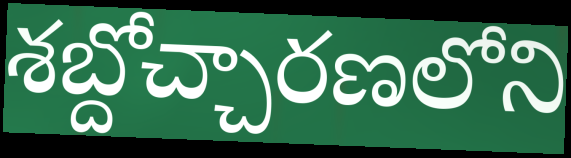
శబ్దోచ్చారణలోని